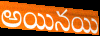
అయినయి